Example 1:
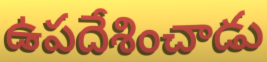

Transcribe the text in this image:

ఉపదేశించాడు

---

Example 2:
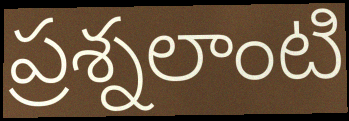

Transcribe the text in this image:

ప్రశ్నలాంటి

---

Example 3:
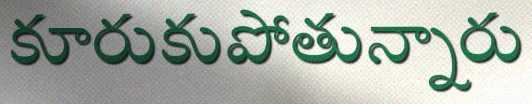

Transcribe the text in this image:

కూరుకుపోతున్నారు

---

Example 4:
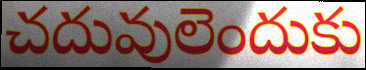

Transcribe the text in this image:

చదువులెందుకు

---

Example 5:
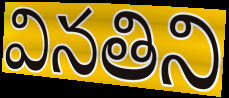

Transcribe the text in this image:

వినతిని